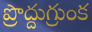
ప్రొద్దుగ్రుంక